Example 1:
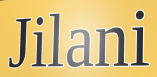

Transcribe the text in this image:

Jilani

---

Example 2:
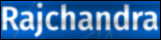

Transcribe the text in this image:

Rajchandra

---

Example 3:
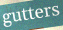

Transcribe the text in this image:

gutters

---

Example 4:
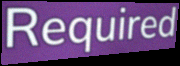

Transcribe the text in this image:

Required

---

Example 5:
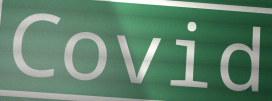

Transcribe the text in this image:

Covid